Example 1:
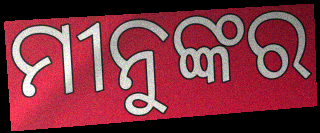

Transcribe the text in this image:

ମୀନୁଙ୍କର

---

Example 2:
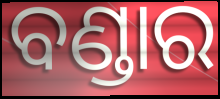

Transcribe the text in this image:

ବଣ୍ଡାର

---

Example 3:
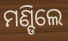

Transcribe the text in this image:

ମଣ୍ଡିଲେ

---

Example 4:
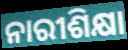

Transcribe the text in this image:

ନାରୀଶିକ୍ଷା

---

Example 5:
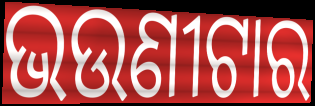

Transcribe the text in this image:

ଭଉଣୀଟାର